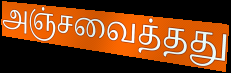
அஞ்சவைத்தது